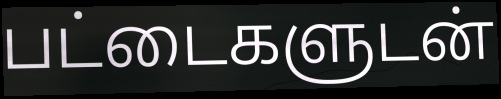
பட்டைகளுடன்